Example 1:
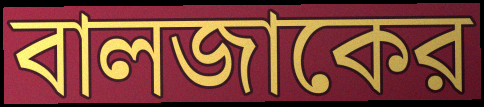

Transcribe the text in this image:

বালজাকের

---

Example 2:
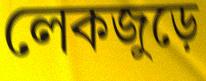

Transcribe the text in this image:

লেকজুড়ে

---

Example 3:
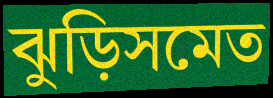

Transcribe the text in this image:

ঝুড়িসমেত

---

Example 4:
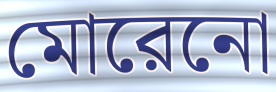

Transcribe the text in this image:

মোরেনো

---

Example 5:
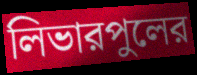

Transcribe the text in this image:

লিভারপুলের